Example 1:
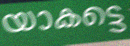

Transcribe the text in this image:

യാകട്ടെ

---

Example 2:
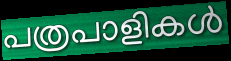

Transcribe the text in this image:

പത്രപാളികൾ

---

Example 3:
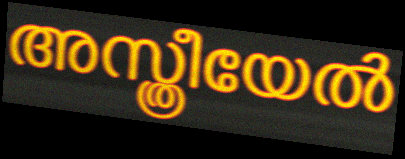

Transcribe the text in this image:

അസ്ത്രീയേൽ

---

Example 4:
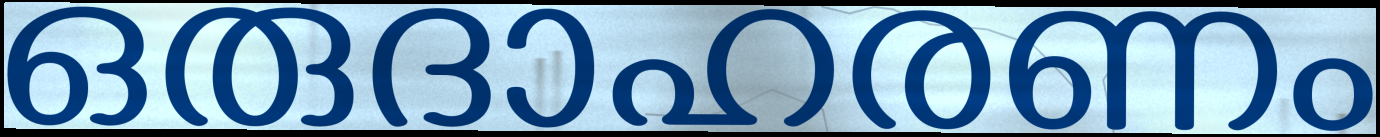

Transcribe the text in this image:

ഒരുദാഹരണം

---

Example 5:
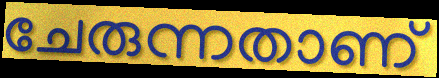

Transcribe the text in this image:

ചേരുന്നതാണ്